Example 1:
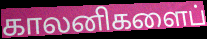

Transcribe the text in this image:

காலனிகளைப்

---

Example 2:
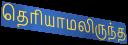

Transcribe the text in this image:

தெரியாமலிருந்த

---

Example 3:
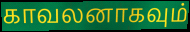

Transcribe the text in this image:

காவலனாகவும்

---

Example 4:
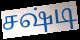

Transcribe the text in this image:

சஷ்டி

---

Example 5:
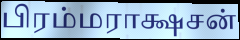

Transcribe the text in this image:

பிரம்மராக்ஷசன்